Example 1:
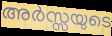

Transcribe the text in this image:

അർസ്സയുടെ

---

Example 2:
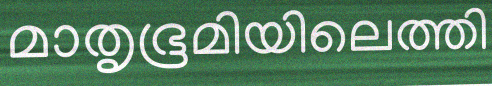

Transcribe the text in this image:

മാതൃഭൂമിയിലെത്തി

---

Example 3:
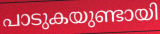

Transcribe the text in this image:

പാടുകയുണ്ടായി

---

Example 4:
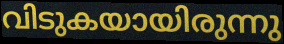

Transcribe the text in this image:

വിടുകയായിരുന്നു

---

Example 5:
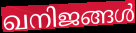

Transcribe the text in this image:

ഖനിജങ്ങൾ